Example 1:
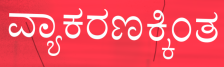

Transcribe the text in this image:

ವ್ಯಾಕರಣಕ್ಕಿಂತ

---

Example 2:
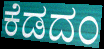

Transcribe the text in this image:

ಕೆಡದಂ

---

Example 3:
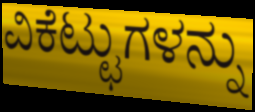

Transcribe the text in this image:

ವಿಕೆಟ್ಟುಗಳನ್ನು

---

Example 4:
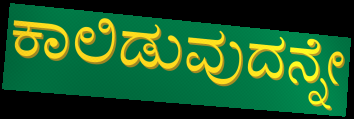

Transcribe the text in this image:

ಕಾಲಿಡುವುದನ್ನೇ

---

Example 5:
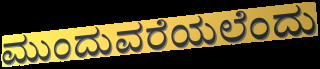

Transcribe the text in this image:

ಮುಂದುವರೆಯಲೆಂದು